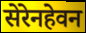
सेरेनहेवन